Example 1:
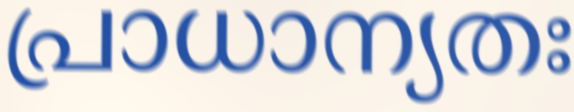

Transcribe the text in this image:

പ്രാധാന്യതഃ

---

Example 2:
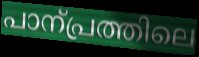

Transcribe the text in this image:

പാന്പ്രത്തിലെ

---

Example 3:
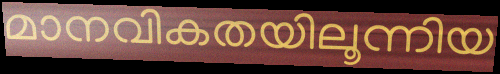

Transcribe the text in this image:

മാനവികതയിലൂന്നിയ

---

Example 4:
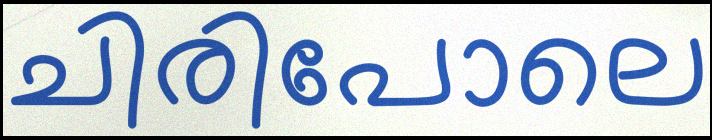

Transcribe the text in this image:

ചിരിപോലെ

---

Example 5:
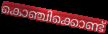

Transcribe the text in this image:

കൊഞ്ചിക്കൊണ്ട്